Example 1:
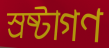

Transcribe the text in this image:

স্রষ্টাগণ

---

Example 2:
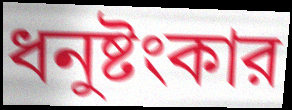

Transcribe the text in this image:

ধনুষ্টংকার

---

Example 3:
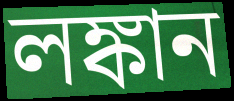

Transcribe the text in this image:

লঙ্কান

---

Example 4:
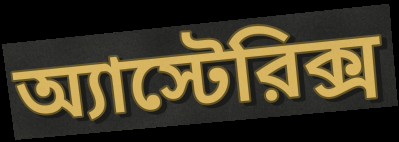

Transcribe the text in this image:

অ্যাস্টেরিক্স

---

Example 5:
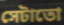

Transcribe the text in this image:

সেটাতো